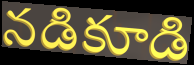
నడికూడి